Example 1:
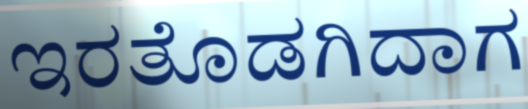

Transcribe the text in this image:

ಇರತೊಡಗಿದಾಗ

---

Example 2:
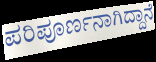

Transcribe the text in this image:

ಪರಿಪೂರ್ಣನಾಗಿದ್ದಾನೆ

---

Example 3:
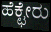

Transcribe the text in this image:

ಹೆಕ್ಟೇರು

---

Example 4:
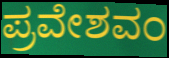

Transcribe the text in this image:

ಪ್ರವೇಶವಂ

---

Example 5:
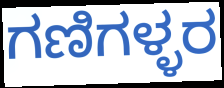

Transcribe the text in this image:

ಗಣಿಗಳ್ಳರ